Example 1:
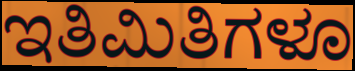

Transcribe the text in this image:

ಇತಿಮಿತಿಗಳೂ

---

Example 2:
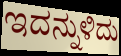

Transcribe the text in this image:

ಇದನ್ನುಳಿದು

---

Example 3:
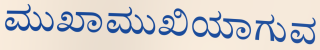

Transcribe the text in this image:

ಮುಖಾಮುಖಿಯಾಗುವ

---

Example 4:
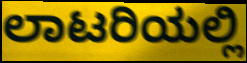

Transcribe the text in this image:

ಲಾಟರಿಯಲ್ಲಿ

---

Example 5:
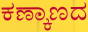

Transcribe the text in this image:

ಕಣ್ಕಾಣದ